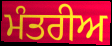
ਮੰਤਰੀਅ